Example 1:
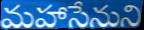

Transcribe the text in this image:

మహాసేనుని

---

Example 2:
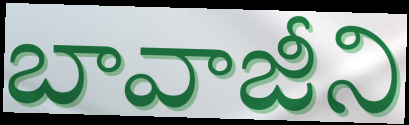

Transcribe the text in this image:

బావాజీని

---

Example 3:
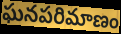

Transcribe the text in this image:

ఘనపరిమాణం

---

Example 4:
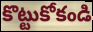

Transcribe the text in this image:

కొట్టుకోకండి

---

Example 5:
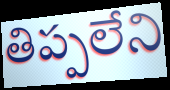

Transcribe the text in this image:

తిప్పలేని